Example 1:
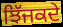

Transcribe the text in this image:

ਝਿੱਜਕਦੇ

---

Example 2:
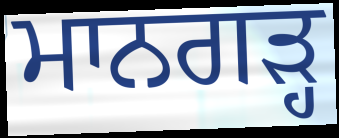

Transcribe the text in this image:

ਮਾਨਗੜ੍ਹ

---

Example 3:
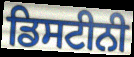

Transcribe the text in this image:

ਡਿਸਟੀਨੀ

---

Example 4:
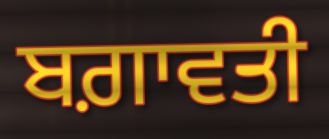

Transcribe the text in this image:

ਬਗ਼ਾਵਤੀ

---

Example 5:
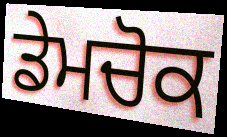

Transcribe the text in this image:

ਡੇਮਚੋਕ